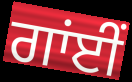
ਗਾਂਈਂ